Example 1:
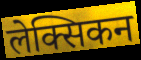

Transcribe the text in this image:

लेक्सिकन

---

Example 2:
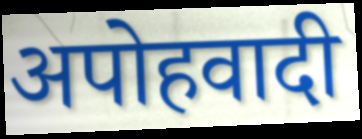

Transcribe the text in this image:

अपोहवादी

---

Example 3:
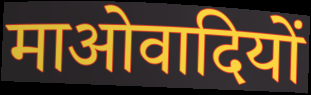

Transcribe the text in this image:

माओवादियों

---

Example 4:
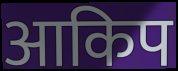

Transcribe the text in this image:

आकिप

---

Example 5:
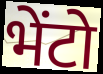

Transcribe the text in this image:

भेंटो